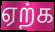
ஏற்க